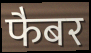
फैबर